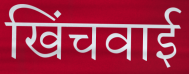
खिंचवाई